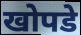
खोपडे